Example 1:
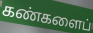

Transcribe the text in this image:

கண்களைப்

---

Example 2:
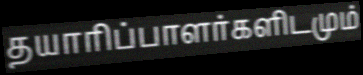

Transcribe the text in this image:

தயாரிப்பாளர்களிடமும்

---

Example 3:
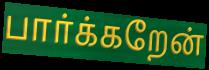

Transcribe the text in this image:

பார்க்கறேன்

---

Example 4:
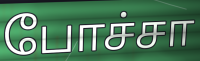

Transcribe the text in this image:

போச்சா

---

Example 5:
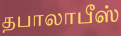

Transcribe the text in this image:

தபாலாபீஸ்